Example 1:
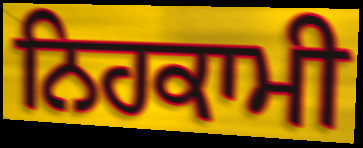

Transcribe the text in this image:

ਨਿਹਕਾਮੀ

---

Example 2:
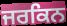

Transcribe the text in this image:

ਜਰਕਿਨ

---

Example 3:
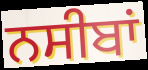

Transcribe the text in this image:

ਨਸੀਬਾਂ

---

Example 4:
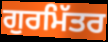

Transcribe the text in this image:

ਗੁਰਮਿੱਤਰ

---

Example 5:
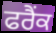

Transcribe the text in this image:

ਫਰੈਂਕ